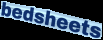
bedsheets